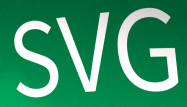
SVG